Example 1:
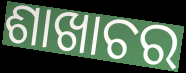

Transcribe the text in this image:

ଶାଖାଚର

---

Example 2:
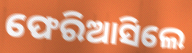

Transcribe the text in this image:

ଫେରିଆସିଲେ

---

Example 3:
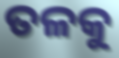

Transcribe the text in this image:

ତଳକୁ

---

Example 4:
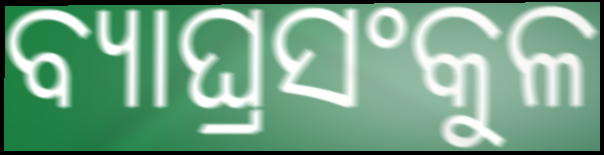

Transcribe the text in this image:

ବ୍ୟାଘ୍ରସଂକୁଳ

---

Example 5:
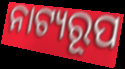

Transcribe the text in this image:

ନାଟ୍ୟରୂପ